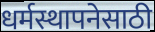
धर्मस्थापनेसाठी